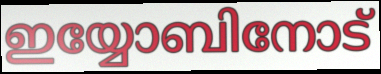
ഇയ്യോബിനോട്